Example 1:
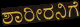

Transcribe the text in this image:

ಶಾರೀರನಿಗೆ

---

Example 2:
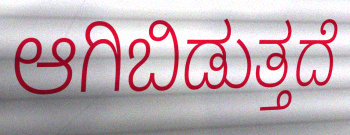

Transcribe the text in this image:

ಆಗಿಬಿಡುತ್ತದೆ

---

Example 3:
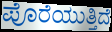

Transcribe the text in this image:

ಪೊರೆಯುತ್ತಿದೆ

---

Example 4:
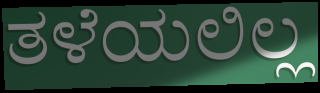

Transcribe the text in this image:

ತಳೆಯಲಿಲ್ಲ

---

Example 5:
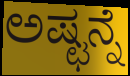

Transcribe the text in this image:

ಅಷ್ಟನ್ನೆ